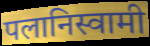
पलानिस्वामी